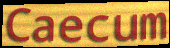
Caecum